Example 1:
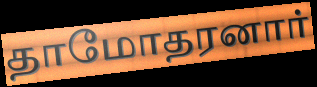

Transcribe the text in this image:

தாமோதரனார்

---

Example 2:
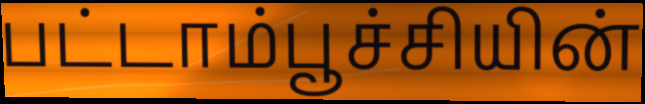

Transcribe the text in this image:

பட்டாம்பூச்சியின்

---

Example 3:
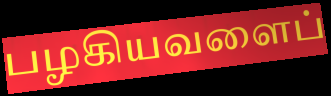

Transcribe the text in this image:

பழகியவளைப்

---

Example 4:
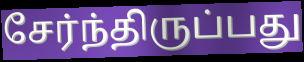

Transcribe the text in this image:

சேர்ந்திருப்பது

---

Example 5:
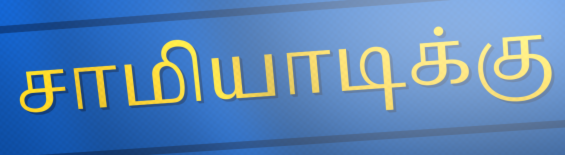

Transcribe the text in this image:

சாமியாடிக்கு